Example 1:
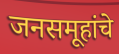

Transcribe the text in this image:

जनसमूहांचे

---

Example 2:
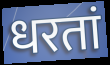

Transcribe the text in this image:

धरतां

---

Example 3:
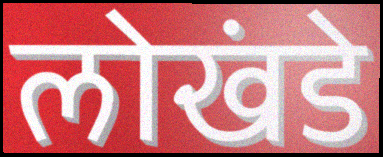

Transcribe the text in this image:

लोखंडे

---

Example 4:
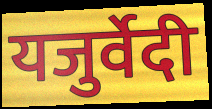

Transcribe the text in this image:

यजुर्वेदी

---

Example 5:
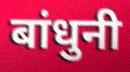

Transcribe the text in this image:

बांधुनी